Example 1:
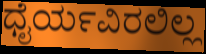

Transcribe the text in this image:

ಧೈರ್ಯವಿರಲಿಲ್ಲ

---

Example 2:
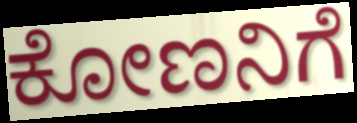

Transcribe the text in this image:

ಕೋಣನಿಗೆ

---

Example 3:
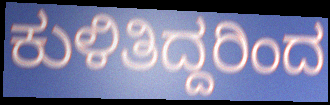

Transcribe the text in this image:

ಕುಳಿತಿದ್ದರಿಂದ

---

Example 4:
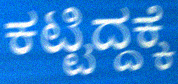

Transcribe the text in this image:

ಕಟ್ಟಿದ್ದಕ್ಕೆ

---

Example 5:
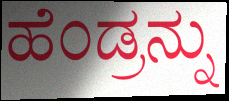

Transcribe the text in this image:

ಹೆಂಡ್ರನ್ನು